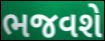
ભજવશે